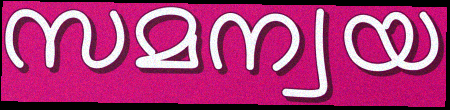
സമന്വയ